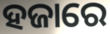
ହଜାରେ